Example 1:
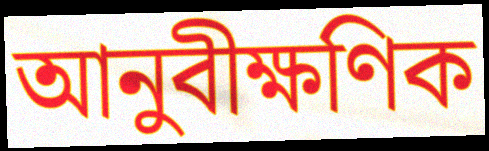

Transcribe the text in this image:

আনুবীক্ষণিক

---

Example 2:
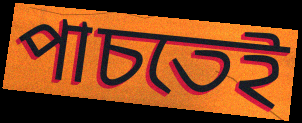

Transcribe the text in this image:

পাচতেই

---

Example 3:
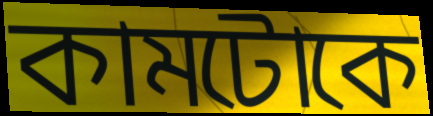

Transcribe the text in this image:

কামটোকে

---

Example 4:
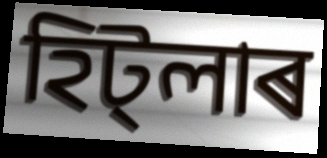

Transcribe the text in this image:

হিট্‌লাৰ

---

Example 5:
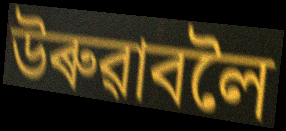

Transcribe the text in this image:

উৰুৱাবলৈ